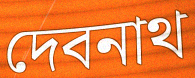
দেবনাথ